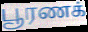
பூரணக்